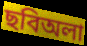
ছবিঅলা